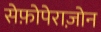
सेफ़ोपेराज़ोन